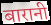
बारानी